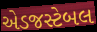
એડજસ્ટેબલ